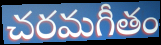
చరమగీతం